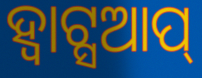
ହ୍ୱାଟ୍ସଆପ୍